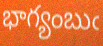
భాగ్యంబుఁ